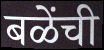
बळेंची